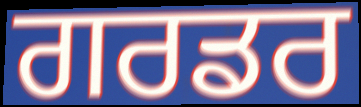
ਗਰਡਰ